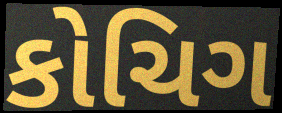
કોચિગ